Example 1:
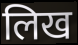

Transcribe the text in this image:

लिख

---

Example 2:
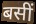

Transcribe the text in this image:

बसीं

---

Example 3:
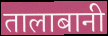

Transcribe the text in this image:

तालाबानी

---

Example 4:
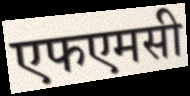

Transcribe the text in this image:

एफएमसी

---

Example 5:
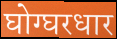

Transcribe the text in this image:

घोग्घरधार